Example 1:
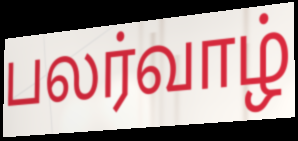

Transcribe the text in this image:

பலர்வாழ்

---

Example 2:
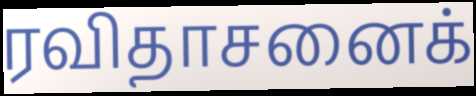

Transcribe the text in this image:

ரவிதாசனைக்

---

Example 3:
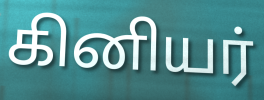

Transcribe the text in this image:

கினியர்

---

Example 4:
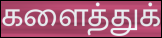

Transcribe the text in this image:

களைத்துக்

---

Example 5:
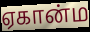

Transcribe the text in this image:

ஏகான்ம